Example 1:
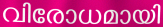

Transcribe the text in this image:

വിരോധമായി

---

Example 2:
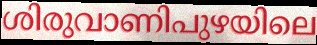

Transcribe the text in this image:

ശിരുവാണിപുഴയിലെ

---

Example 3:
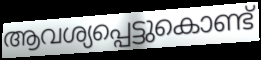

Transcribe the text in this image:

ആവശ്യപ്പെട്ടുകൊണ്ട്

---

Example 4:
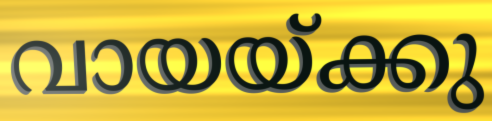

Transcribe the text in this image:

വായയ്ക്കു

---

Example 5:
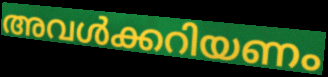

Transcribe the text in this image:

അവൾക്കറിയണം